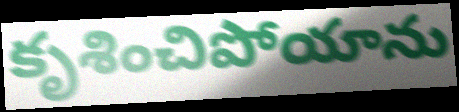
కృశించిపోయాను